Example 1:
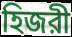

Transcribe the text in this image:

হিজরী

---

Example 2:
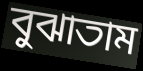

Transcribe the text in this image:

বুঝাতাম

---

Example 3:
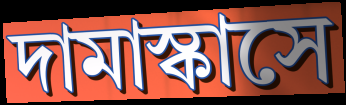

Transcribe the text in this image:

দামাস্কাসে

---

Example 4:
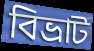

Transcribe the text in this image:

বিভ্রাট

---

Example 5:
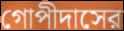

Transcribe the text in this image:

গোপীদাসের